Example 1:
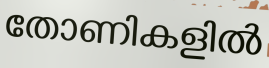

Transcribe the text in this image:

തോണികളിൽ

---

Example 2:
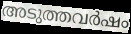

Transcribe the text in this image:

അടുത്തവർഷം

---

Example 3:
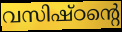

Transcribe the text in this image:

വസിഷ്ഠന്റെ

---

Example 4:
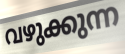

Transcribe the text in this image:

വഴുക്കുന്ന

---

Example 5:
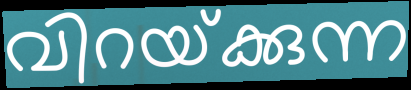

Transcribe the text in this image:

വിറയ്‌ക്കുന്ന